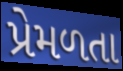
પ્રેમળતા